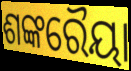
ଶଙ୍କରୈୟା